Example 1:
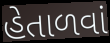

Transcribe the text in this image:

હેતાળવાં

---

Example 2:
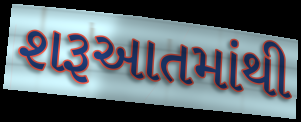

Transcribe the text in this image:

શરૂઆતમાંથી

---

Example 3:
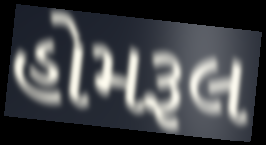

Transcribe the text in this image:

હોમરૂલ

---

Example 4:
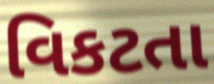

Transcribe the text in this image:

વિકટતા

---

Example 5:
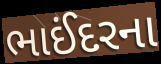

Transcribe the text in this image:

ભાઈંદરના